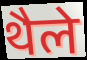
थैले